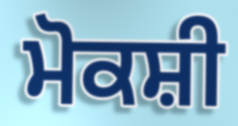
ਮੋਕਸ਼ੀ